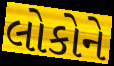
લોકોને